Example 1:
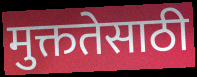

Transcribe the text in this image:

मुक्ततेसाठी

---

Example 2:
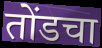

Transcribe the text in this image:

तोंडचा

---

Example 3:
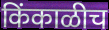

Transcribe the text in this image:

किंकाळीच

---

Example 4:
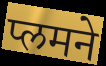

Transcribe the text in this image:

प्लमने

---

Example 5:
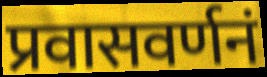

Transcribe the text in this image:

प्रवासवर्णनं